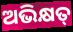
ଅଭିକ୍ଷତ୍